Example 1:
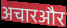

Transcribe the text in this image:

अचारऔर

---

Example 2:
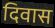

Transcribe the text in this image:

दिवास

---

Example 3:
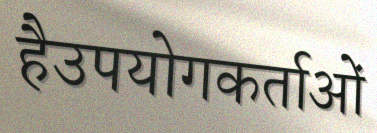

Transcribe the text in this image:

हैउपयोगकर्ताओं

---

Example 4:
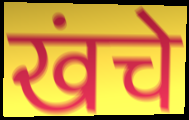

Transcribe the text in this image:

खंचे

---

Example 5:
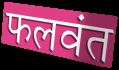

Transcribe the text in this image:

फलवंत